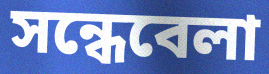
সন্ধেবেলা